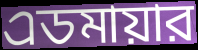
এডমায়ার